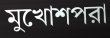
মুখোশপরা